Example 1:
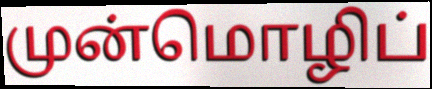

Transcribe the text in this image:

முன்மொழிப்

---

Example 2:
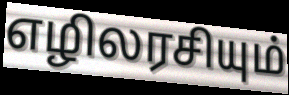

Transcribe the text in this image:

எழிலரசியும்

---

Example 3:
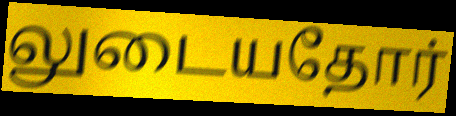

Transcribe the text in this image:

லுடையதோர்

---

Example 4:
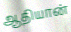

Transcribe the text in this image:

ஆதியான்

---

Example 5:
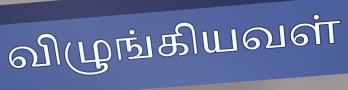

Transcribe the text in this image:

விழுங்கியவள்